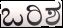
ಒರಿಶ